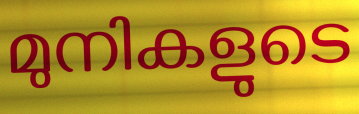
മുനികളുടെ